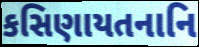
કસિણાયતનાનિ